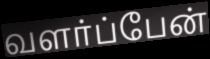
வளர்ப்பேன்